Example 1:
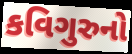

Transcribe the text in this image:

કવિગુરુનો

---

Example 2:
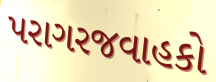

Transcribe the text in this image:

પરાગરજવાહકો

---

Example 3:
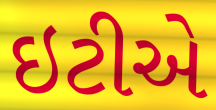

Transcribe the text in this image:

ઇટીએ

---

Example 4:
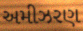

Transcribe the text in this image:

અમીઝરણ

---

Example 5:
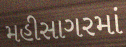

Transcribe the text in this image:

મહીસાગરમાં